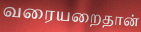
வரையறைதான்